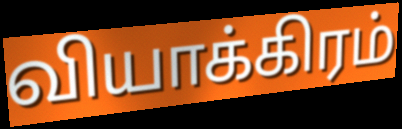
வியாக்கிரம்